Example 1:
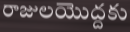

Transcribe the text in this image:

రాజులయొద్దకు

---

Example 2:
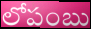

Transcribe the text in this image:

లోపంబు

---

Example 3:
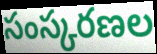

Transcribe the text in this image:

సంస్కరణల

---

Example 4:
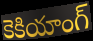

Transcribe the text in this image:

కెకియాంగ్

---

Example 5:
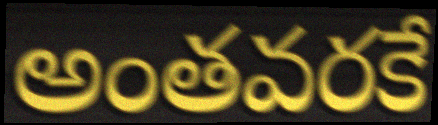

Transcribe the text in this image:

అంతవరకే